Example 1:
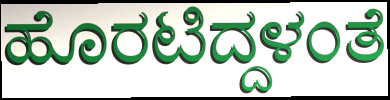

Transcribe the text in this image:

ಹೊರಟಿದ್ದಳಂತೆ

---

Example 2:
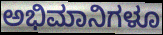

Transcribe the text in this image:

ಅಭಿಮಾನಿಗಳೂ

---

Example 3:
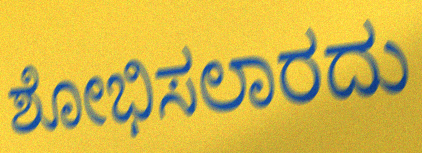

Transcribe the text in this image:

ಶೋಭಿಸಲಾರದು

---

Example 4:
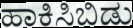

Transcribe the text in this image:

ಹಾಕಿಸಿಬಿಡು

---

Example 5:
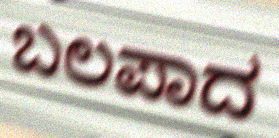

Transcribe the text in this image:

ಬಲಪಾದ